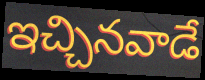
ఇచ్చినవాడే